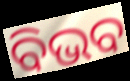
ବିଭବ